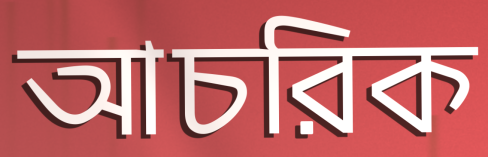
আচরিক